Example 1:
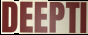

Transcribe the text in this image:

DEEPTI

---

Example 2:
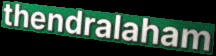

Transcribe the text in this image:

thendralaham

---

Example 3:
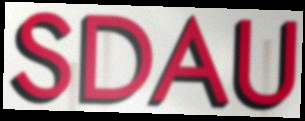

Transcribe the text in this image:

SDAU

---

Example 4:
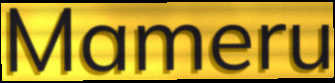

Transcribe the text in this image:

Mameru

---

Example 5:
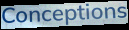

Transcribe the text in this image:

Conceptions